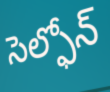
సెల్ఫోన్